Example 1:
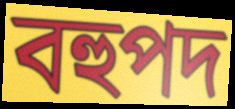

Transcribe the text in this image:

বহুপদ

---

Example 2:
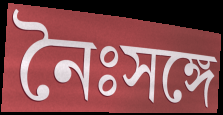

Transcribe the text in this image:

নৈঃসঙ্গে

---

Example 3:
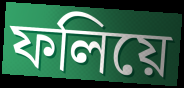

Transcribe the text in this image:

ফলিয়ে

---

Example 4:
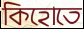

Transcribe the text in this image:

কিহোতে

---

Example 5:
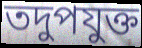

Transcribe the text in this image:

তদুপযুক্ত